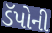
ડૅપોની